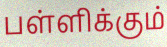
பள்ளிக்கும்